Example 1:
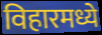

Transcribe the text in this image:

विहारमध्ये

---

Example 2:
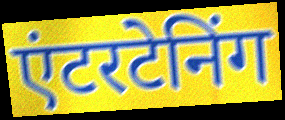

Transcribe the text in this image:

एंटरटेनिंग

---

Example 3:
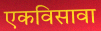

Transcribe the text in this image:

एकविसावा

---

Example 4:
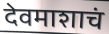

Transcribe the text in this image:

देवमाशाचं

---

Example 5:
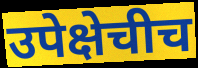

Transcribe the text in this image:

उपेक्षेचीच